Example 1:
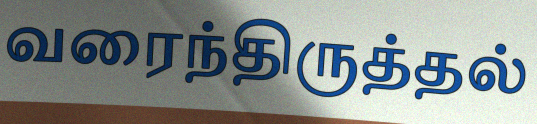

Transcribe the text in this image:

வரைந்திருத்தல்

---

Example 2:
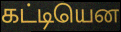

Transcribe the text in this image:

கட்டியென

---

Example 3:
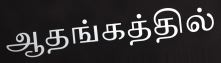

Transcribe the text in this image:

ஆதங்கத்தில்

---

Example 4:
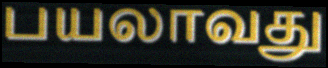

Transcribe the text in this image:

பயலாவது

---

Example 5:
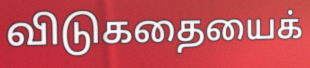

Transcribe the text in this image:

விடுகதையைக்